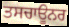
ਤਸਚਾਊਨਰ